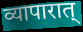
व्यापारात्